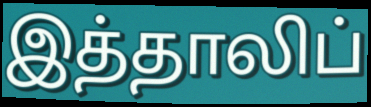
இத்தாலிப்